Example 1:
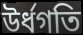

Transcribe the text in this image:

উর্ধগতি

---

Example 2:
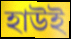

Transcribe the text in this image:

হাউই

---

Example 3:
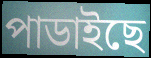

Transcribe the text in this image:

পাডাইছে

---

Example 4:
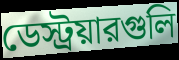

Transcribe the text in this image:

ডেস্ট্রয়ারগুলি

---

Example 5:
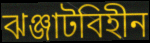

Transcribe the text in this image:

ঝঞ্জাটবিহীন